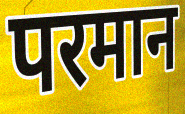
परमान